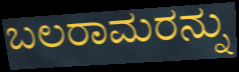
ಬಲರಾಮರನ್ನು